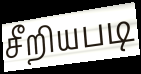
சீறியபடி